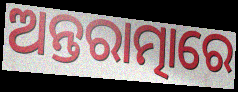
ଅନ୍ତରାତ୍ମାରେ